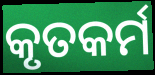
କୃତକର୍ମ